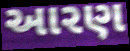
આરણ